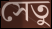
সেতু